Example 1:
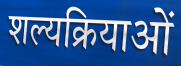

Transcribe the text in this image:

शल्यक्रियाओं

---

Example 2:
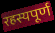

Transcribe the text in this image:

रहस्यपूर्ण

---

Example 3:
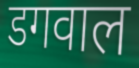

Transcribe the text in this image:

डगवाल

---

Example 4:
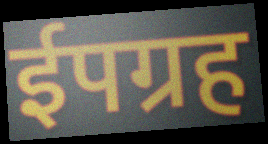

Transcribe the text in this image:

ईपग्रह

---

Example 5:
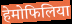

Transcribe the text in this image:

हेमोफिलिया